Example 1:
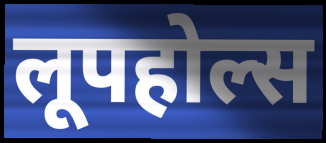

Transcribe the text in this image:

लूपहोल्स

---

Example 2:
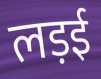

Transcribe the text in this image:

लड़ई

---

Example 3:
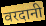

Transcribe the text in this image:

वरदानी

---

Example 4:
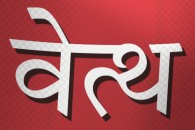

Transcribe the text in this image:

वेत्थ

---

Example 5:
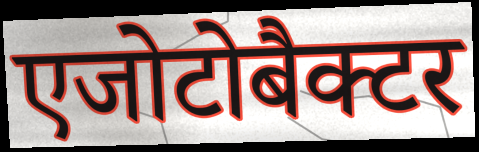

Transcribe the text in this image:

एजोटोबैक्टर